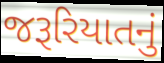
જરૂરિયાતનું